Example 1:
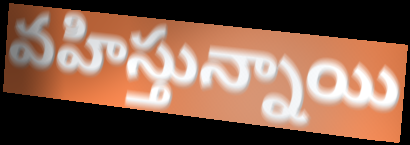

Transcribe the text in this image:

వహిస్తున్నాయి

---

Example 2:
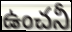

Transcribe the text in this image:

ఉంచనీ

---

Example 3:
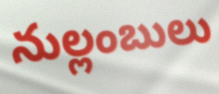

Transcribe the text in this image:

నుల్లంబులు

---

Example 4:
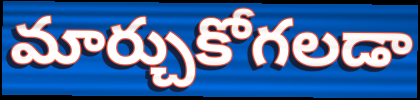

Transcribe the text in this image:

మార్చుకోగలడా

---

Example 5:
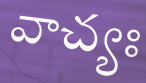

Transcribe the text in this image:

వాచ్యః